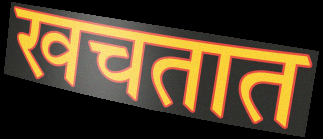
खचतात